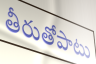
తీరుతోపాటు